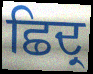
ਛਿਦ੍ਰ